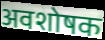
अवशोषक